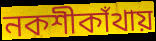
নকশীকাঁথায়